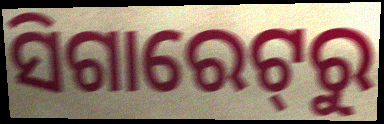
ସିଗାରେଟ୍‌ରୁ